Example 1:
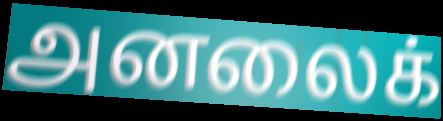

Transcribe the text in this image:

அனலைக்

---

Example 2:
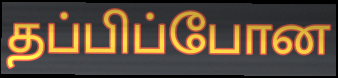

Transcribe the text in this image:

தப்பிப்போன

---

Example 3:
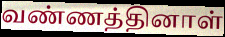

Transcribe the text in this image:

வண்ணத்தினாள்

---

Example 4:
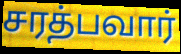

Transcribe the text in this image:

சரத்பவார்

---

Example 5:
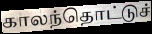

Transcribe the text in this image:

காலந்தொட்டுச்